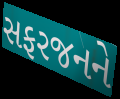
સફરજનને